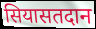
सियासतदान